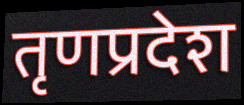
तृणप्रदेश